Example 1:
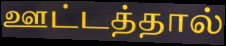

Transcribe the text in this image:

ஊட்டத்தால்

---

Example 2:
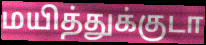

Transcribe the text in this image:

மயித்துக்குடா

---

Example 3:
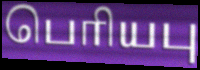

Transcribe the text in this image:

பெரியபு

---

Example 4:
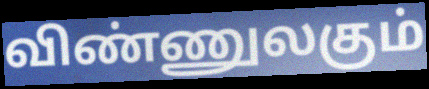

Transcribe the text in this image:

விண்ணுலகும்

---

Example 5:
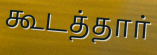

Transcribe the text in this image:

கூடத்தார்